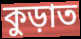
কুড়াত